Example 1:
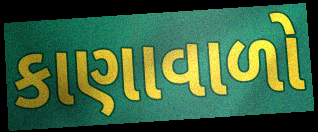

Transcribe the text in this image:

કાણાવાળો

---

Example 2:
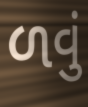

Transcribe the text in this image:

ળવું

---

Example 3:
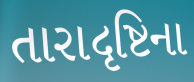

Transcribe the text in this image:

તારાદૃષ્ટિના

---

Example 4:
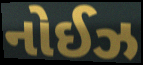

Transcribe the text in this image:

નોઈઝ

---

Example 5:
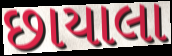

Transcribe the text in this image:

છાયાલા